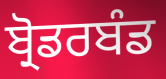
ਬ੍ਰੋਡਰਬੰਡ